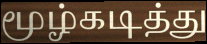
மூழ்கடித்து